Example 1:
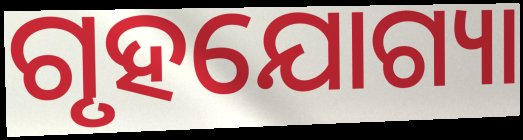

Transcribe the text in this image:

ଗୃହଯୋଗ୍ୟା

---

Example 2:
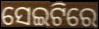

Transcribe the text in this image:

ସେଇଟିରେ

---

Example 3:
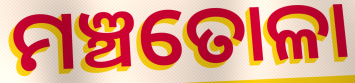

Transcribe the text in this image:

ମଞ୍ଚତୋଳା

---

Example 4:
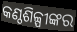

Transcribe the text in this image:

କଣ୍ଠଶିଳ୍ପୀଙ୍କର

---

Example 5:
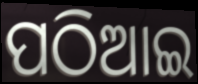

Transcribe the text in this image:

ପଠିଆଇ